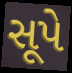
સૂપે